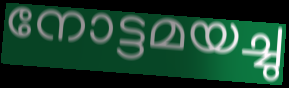
നോട്ടമയച്ചു